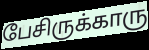
பேசிருக்காரு